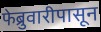
फेब्रुवारीपासून